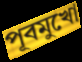
পূবমুখো